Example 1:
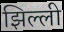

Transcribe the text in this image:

झिल्ली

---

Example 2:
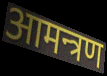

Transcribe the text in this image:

आमन्त्रण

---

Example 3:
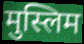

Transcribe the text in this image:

मुस्लिम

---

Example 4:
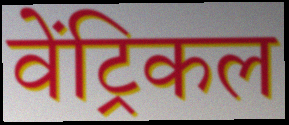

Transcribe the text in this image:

वेंट्रिकल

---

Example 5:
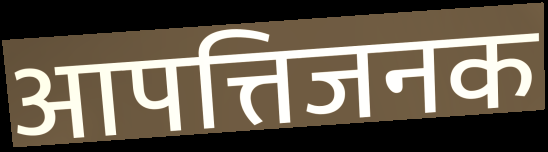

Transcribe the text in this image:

आपत्तिजनक